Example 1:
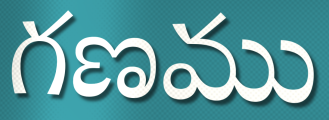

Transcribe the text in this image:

గణము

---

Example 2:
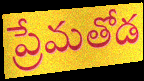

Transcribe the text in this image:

ప్రేమతోడ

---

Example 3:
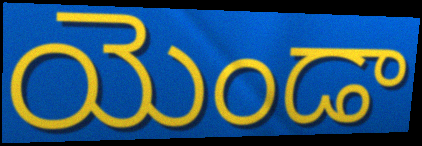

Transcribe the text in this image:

యెండా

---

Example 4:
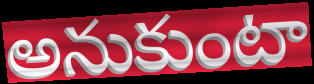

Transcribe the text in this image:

అనుకుంటా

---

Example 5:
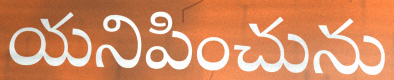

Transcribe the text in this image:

యనిపించును